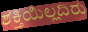
ಶಕ್ತಿಯಿಲ್ಲದಿರು